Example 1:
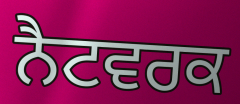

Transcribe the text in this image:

ਨੈਟਵਰਕ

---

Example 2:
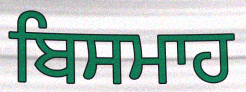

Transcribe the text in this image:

ਬਿਸਮਾਹ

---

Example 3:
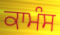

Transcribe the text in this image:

ਕਾਮੰਸ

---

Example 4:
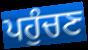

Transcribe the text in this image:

ਪਹੁੰਚਣ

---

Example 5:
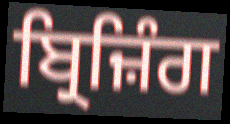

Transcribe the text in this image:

ਬ੍ਰਿਜ਼ਿੰਗ